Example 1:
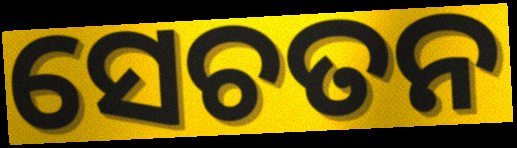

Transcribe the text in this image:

ସେଚତନ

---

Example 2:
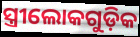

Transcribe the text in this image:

ସ୍ତ୍ରୀଲୋକଗୁଡ଼ିକ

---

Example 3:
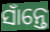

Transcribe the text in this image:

ସାଁନ୍ତେ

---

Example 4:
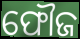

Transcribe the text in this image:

ଫୌଜ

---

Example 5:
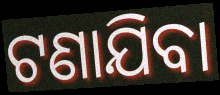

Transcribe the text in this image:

ଟଣାଯିବା